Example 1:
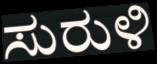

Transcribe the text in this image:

ಸುರುಳಿ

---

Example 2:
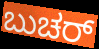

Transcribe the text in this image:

ಬುಚರ್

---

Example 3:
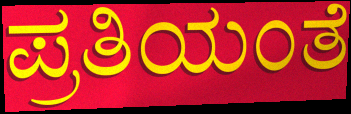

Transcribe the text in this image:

ಪ್ರತಿಯಂತೆ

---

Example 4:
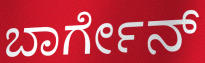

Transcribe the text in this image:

ಬಾರ್ಗೇನ್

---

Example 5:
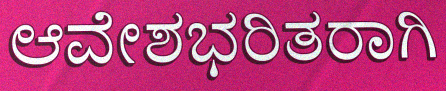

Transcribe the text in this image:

ಆವೇಶಭರಿತರಾಗಿ